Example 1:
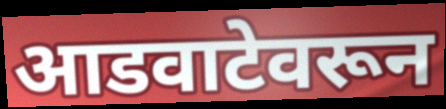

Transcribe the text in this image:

आडवाटेवरून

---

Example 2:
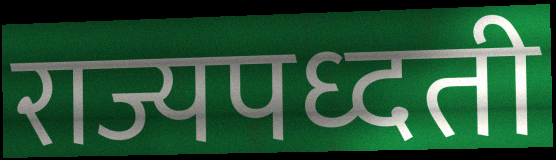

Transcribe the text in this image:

राज्यपध्दती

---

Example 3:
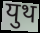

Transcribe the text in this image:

युथ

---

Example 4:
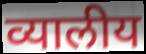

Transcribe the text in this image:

व्यालीय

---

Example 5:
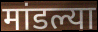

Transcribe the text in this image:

मांडल्या